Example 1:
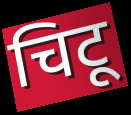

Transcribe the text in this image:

चिटू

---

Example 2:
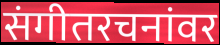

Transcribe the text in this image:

संगीतरचनांवर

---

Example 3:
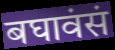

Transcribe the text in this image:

बघावंसं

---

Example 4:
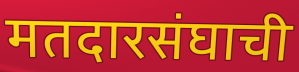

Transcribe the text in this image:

मतदारसंघाची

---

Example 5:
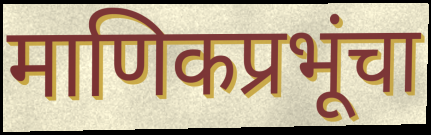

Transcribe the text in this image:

माणिकप्रभूंचा